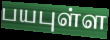
பயபுள்ள